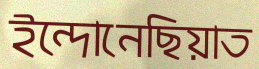
ইন্দোনেছিয়াত